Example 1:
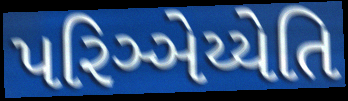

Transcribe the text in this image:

પરિઞ્ઞેય્યેતિ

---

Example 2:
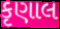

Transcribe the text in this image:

કૃણાલ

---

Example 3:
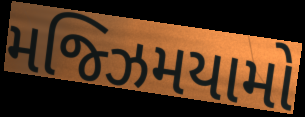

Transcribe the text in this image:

મજ્ઝિમયામો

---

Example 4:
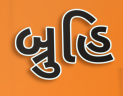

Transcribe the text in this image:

બ્રુહિ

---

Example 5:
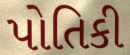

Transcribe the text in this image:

પોતિકી